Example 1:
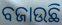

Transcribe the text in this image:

ବଜାଉଛି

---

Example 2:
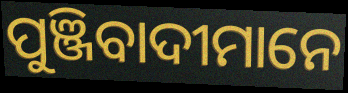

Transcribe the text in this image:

ପୁଞ୍ଜିବାଦୀମାନେ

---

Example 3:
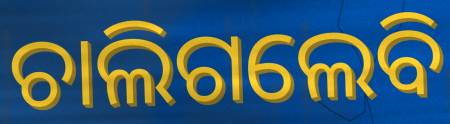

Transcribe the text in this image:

ଚାଲିଗଲେବି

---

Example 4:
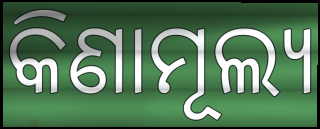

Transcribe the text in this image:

କିଣାମୂଲ୍ୟ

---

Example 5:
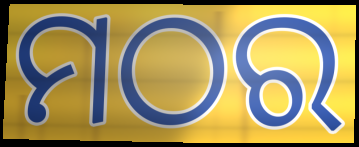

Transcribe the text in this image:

ମଠର